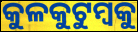
କୁଳକୁଟୁମ୍ବକୁ